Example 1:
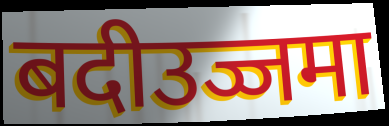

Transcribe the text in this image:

बदीउज्जमा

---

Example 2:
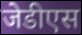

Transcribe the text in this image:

जेडीएस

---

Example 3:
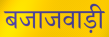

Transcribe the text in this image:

बजाजवाड़ी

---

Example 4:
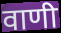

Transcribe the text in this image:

वाणी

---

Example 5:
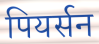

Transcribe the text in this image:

पियर्सन